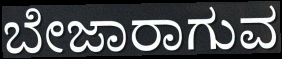
ಬೇಜಾರಾಗುವ